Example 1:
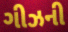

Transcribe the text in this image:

ગીઝની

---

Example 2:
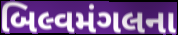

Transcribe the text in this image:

બિલ્વમંગલના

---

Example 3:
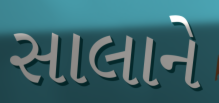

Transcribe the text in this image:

સાલાને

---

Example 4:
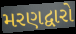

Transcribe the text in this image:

મરણદ્વારો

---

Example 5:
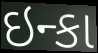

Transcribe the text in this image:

ઇન્કા